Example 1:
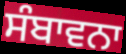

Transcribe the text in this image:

ਸੰਬਾਵਨਾ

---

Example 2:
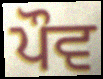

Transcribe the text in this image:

ਪੌਵ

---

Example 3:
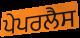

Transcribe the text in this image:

ਪੇਪਰਲੈਸ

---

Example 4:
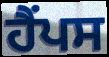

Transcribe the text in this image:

ਹੈਂਪਸ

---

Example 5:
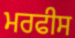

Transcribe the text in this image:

ਮਰਫੀਸ